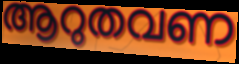
ആറുതവണ